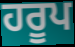
ਹਰੂਪ